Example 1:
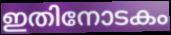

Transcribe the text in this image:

ഇതിനോടകം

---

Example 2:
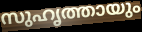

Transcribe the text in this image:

സുഹൃത്തായും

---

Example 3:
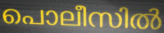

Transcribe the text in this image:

പൊലീസിൽ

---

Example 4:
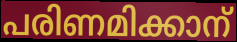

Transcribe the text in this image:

പരിണമിക്കാന്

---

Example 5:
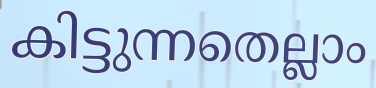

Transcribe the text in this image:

കിട്ടുന്നതെല്ലാം